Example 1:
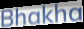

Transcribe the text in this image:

Bhakha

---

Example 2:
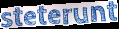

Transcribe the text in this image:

steterunt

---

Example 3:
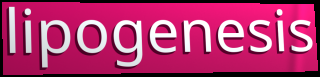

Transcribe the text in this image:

lipogenesis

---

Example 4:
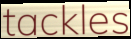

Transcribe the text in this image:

tackles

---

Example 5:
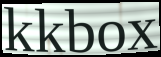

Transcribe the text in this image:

kkbox